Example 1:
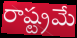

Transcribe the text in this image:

రాష్ట్రమే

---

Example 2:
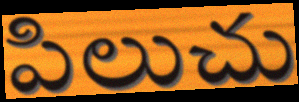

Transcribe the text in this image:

పిలుచు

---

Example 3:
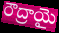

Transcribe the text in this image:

రౌద్రాయై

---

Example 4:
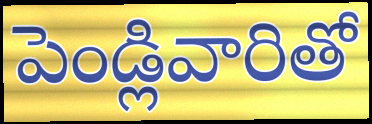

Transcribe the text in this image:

పెండ్లివారితో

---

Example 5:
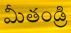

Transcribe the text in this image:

మీతండ్రి